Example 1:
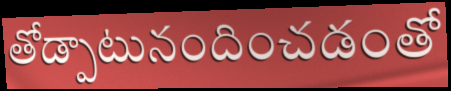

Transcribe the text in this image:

తోడ్పాటునందించడంతో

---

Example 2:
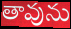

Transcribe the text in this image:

తావును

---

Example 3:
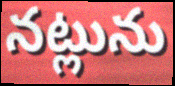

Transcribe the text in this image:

నట్లును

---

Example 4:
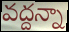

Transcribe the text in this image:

వద్దన్నా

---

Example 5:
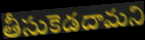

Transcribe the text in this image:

తీసుకెడదామని